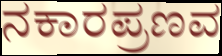
ನಕಾರಪ್ರಣವ